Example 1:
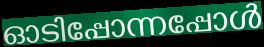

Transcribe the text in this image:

ഓടിപ്പോന്നപ്പോൾ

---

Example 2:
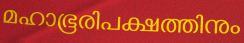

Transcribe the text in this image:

മഹാഭൂരിപക്ഷത്തിനും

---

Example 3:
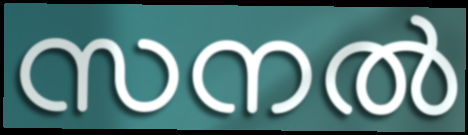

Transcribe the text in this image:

സനൽ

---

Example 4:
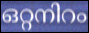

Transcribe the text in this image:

ഒറ്റനിറം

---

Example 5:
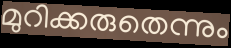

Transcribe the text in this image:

മുറിക്കരുതെന്നും